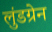
लुंडग्रेन